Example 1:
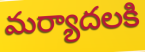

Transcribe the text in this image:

మర్యాదలకి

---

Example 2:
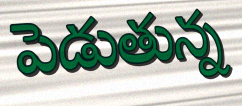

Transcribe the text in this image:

పెడుతున్న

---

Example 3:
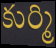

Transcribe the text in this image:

కుర్మి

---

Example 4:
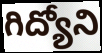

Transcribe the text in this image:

గిద్యోని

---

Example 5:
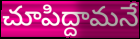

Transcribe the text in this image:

చూపిద్దామనే